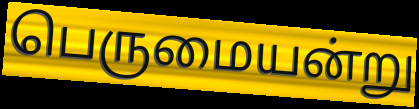
பெருமையன்று